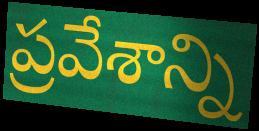
ప్రవేశాన్ని